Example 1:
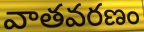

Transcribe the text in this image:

వాతవరణం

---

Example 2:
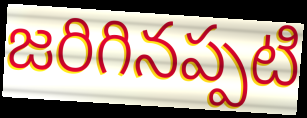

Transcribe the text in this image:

జరిగినప్పటి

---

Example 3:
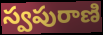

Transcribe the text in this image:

స్వపురాణి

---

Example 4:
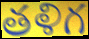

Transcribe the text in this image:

తళిగ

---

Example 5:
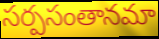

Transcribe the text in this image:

సర్పసంతానమా